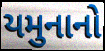
યમુનાનો